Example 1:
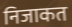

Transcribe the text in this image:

निजाकत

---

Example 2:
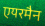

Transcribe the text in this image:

एयरमैन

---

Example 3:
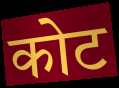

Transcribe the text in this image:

कोट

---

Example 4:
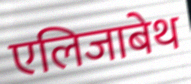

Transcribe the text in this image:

एलिजाबेथ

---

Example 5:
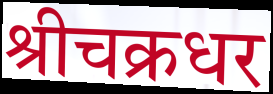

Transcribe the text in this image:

श्रीचक्रधर